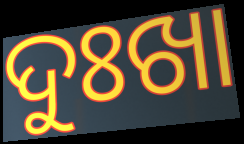
ଦୁଃଖା